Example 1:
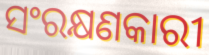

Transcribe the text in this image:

ସଂରକ୍ଷଣକାରୀ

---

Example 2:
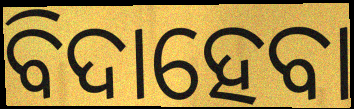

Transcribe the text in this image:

ବିଦାହେବା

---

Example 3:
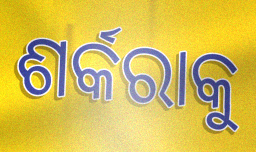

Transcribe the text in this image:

ଶର୍କରାକୁ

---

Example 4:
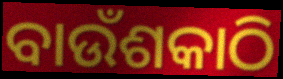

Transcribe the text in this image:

ବାଉଁଶକାଠି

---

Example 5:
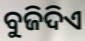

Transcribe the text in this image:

ବୁଜିଦିଏ